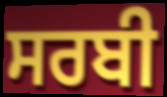
ਸਰਬੀ